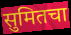
सुमितचा